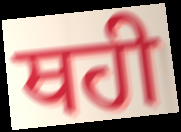
ਥਹੀ